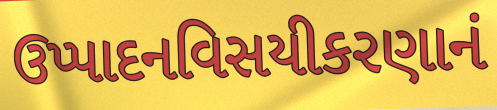
ઉપ્પાદનવિસયીકરણાનં